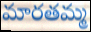
మారతమ్మ